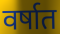
वर्षात